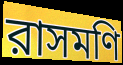
রাসমণি